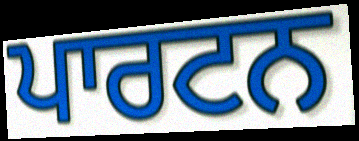
ਪਾਰਟਨ